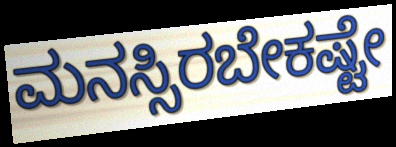
ಮನಸ್ಸಿರಬೇಕಷ್ಟೇ